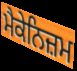
ਮੈਕੇਨਿਜ਼ਮ